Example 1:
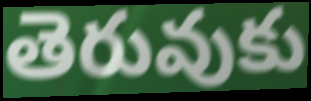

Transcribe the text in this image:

తెరువుకు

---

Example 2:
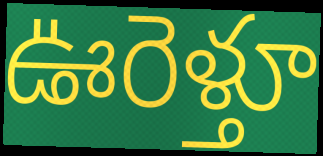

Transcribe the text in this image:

ఊరెళ్తూ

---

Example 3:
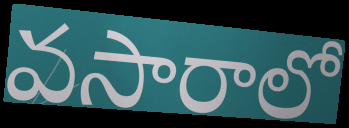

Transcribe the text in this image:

వసారాలో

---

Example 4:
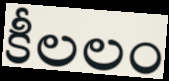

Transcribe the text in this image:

కీలలం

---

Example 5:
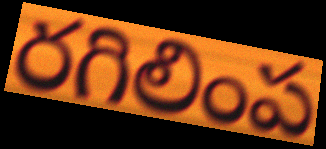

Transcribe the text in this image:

రగిలింప